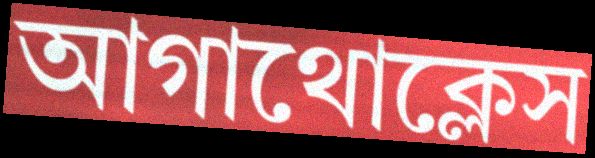
আগাথোক্লেস